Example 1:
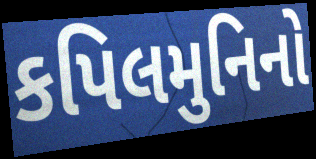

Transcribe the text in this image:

કપિલમુનિનો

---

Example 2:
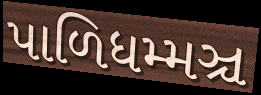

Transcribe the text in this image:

પાળિધમ્મઞ્ચ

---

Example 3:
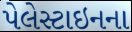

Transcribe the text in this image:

પેલેસ્ટાઇનના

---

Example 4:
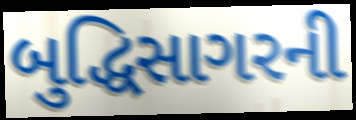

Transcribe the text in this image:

બુદ્ધિસાગરની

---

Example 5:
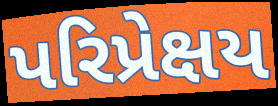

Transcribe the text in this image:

પરિપ્રેક્ષય